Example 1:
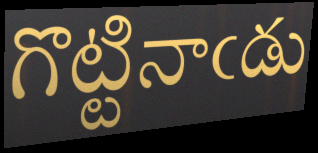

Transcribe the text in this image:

గొట్టినాఁడు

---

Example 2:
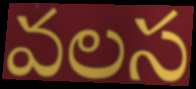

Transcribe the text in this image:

వలస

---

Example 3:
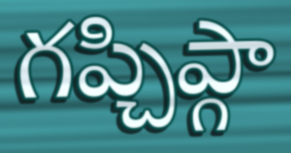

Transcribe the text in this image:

గప్చిప్గా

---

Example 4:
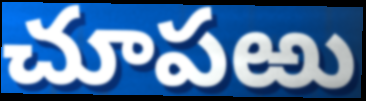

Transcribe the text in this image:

చూపఱు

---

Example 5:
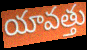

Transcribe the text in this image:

యావత్తు